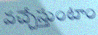
వచ్చేస్తుంటాం